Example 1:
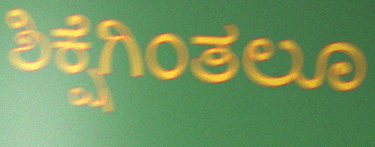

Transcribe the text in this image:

ಶಿಕ್ಷೆಗಿಂತಲೂ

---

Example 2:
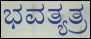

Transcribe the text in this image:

ಭವತ್ಯತ್ರ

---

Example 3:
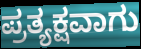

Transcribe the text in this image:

ಪ್ರತ್ಯಕ್ಷವಾಗು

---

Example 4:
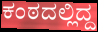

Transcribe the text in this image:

ಕಂಠದಲ್ಲಿದ್ದ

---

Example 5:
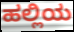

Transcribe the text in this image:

ಹಲ್ಲಿಯ